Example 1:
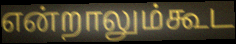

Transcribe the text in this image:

என்றாலும்கூட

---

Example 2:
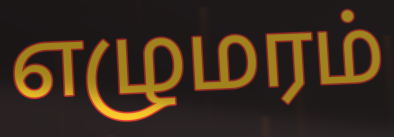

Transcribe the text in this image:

எழுமரம்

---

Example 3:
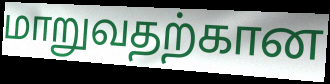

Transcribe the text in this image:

மாறுவதற்கான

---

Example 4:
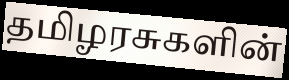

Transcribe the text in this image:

தமிழரசுகளின்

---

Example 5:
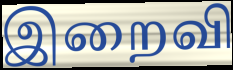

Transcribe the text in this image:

இறைவி